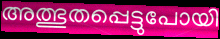
അത്ഭുതപ്പെട്ടുപോയി